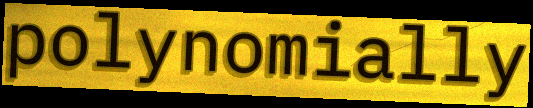
polynomially